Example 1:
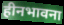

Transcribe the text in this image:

हीनभावना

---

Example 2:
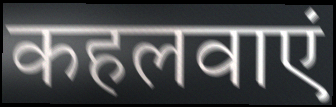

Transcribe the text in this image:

कहलवाएं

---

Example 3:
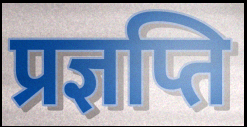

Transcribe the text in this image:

प्रज्ञप्ति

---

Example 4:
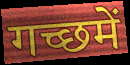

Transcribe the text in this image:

गच्छमें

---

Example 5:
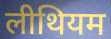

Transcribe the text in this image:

लीथियम